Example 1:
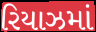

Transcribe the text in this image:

રિયાઝમાં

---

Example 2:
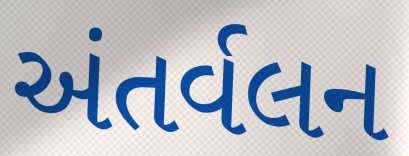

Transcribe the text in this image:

અંતર્વલન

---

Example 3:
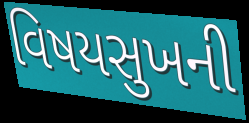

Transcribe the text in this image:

વિષયસુખની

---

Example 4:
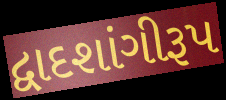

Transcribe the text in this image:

દ્વાદશાંગીરૂપ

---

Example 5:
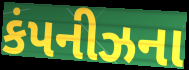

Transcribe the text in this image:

કંપનીઝના